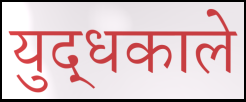
युद्धकाले